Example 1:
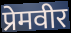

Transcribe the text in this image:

प्रेमवीर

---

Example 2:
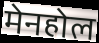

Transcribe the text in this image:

मेनहोल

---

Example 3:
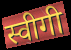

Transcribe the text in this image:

स्वीगी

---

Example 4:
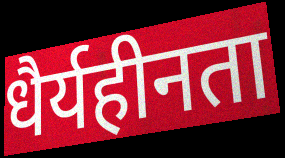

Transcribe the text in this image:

धैर्यहीनता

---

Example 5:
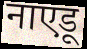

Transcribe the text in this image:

नाएडू